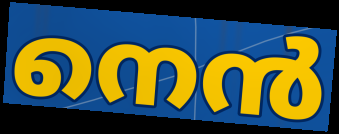
നെൻ